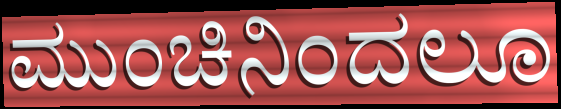
ಮುಂಚಿನಿಂದಲೂ